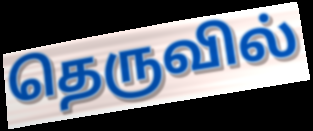
தெருவில்